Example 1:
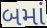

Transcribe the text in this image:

બમાં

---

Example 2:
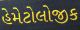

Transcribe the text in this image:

હેમેટોલોજીક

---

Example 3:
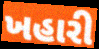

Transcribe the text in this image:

ખહારી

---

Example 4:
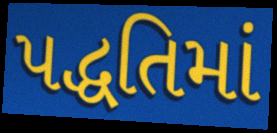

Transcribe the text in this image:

પદ્ધતિમાં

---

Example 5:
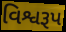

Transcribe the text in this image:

વિશ્વરૂપ